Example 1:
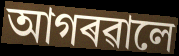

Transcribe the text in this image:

আগৰৱালে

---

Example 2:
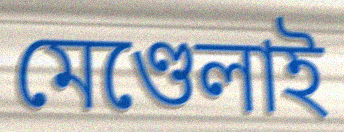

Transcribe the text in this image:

মেণ্ডেলাই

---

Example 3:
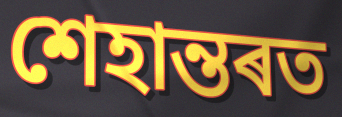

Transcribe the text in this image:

শেহান্তৰত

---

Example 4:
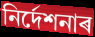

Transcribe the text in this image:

নিৰ্দেশনাৰ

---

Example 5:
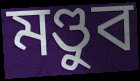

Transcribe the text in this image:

মণ্ডুব